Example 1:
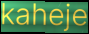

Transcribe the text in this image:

kaheje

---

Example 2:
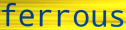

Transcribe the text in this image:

ferrous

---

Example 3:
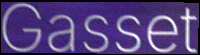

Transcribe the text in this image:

Gasset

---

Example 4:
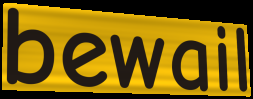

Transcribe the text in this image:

bewail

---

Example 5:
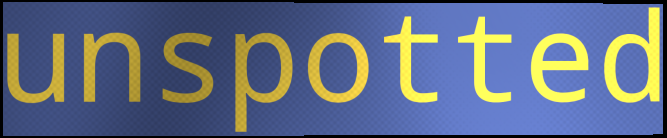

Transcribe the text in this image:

unspotted